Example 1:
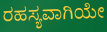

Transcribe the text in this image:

ರಹಸ್ಯವಾಗಿಯೇ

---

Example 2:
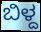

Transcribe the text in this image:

ಬಿಳ್ದ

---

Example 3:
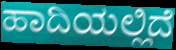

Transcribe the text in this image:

ಹಾದಿಯಲ್ಲಿದೆ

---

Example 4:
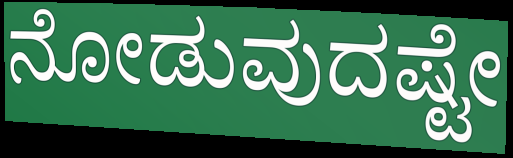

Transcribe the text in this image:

ನೋಡುವುದಷ್ಟೇ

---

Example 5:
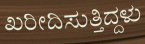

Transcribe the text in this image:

ಖರೀದಿಸುತ್ತಿದ್ದಳು